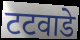
टटवाडे